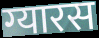
ग्यारस